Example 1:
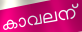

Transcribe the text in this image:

കാവലന്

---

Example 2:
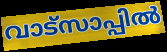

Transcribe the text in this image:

വാട്സാപ്പിൽ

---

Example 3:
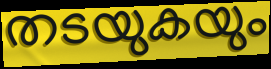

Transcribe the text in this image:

തടയുകയും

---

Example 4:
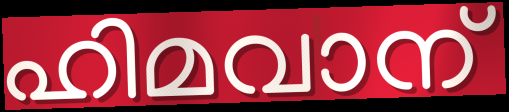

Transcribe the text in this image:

ഹിമവാന്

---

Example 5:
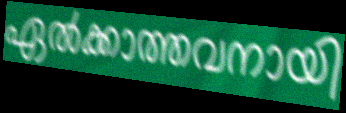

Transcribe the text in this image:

ഏൽക്കാത്തവനായി